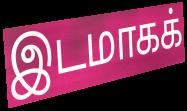
இடமாகக்